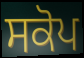
ਸਕੋਪ